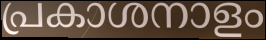
പ്രകാശനാളം